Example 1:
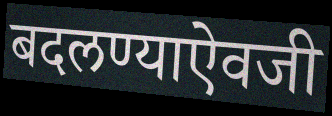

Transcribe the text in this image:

बदलण्याऐवजी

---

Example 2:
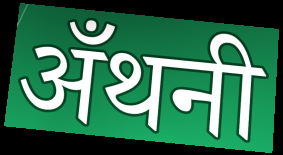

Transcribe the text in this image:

अँथनी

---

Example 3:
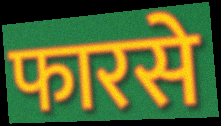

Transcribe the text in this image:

फारसे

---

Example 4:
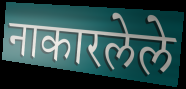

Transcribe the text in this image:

नाकारलेले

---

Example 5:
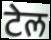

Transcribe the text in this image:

टेल